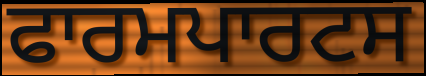
ਫਾਰਮਪਾਰਟਸ